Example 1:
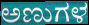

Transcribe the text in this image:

ಅಣುಗಳ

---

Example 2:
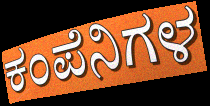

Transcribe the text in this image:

ಕಂಪೆನಿಗಳ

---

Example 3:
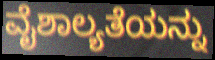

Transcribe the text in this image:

ವೈಶಾಲ್ಯತೆಯನ್ನು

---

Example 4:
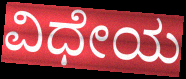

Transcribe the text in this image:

ವಿಧೇಯ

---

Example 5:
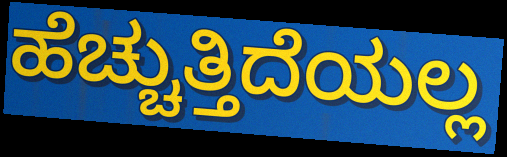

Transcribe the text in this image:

ಹೆಚ್ಚುತ್ತಿದೆಯಲ್ಲ